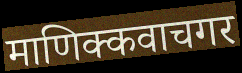
माणिक्कवाचगर